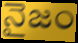
నైజం